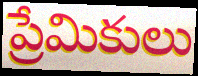
ప్రేమికులు